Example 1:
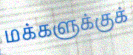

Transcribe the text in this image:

மக்களுக்குக்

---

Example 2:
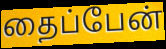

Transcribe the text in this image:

தைப்பேன்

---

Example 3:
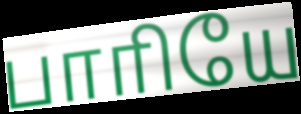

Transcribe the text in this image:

பாரியே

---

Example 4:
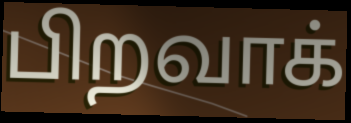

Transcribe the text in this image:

பிறவாக்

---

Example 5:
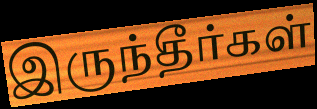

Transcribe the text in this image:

இருந்தீர்கள்